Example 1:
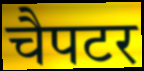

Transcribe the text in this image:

चैपटर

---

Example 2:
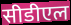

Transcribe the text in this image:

सीडीएल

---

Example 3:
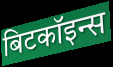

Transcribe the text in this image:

बिटकॉइन्स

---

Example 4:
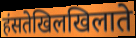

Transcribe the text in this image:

हंसतेखिलखिलाते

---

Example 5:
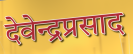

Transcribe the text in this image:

देवेन्द्रप्रसाद